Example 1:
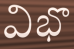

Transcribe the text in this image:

విభొ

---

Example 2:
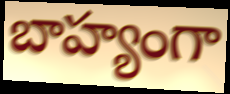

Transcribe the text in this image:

బాహ్యంగా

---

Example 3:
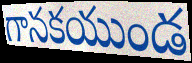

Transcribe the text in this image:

గానకయుండ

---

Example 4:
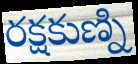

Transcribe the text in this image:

రక్షకుణ్ని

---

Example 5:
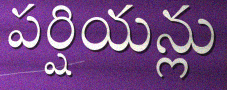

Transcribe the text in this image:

పర్షియన్లు